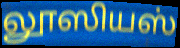
லூஸியஸ்